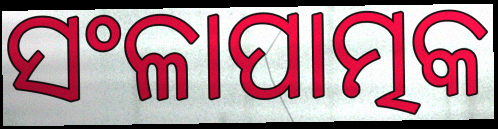
ସଂଳାପାତ୍ମକ